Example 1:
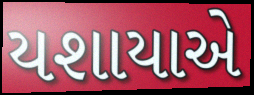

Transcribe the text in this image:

યશાયાએ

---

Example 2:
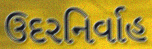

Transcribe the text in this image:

ઉદરનિર્વાહ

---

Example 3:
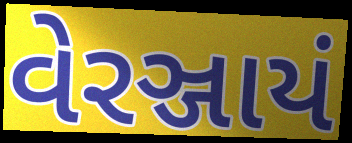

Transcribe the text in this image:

વેરઞ્જાયં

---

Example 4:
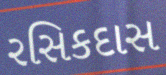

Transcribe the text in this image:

રસિકદાસ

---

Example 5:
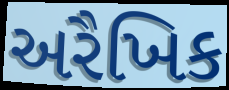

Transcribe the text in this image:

અરૈખિક